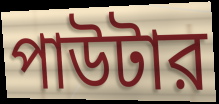
পাউটার